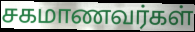
சகமாணவர்கள்